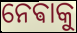
ନେଵାକୁ